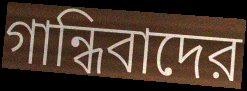
গান্ধিবাদের